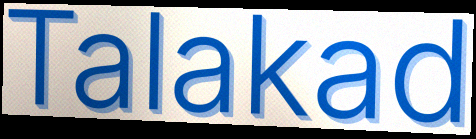
Talakad